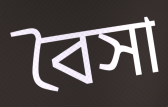
বৈসা